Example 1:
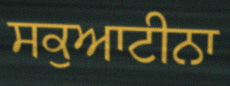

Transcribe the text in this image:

ਸਕੁਆਟੀਨਾ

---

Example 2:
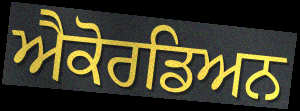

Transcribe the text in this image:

ਐਕੋਰਡਿਅਨ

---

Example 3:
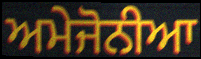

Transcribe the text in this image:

ਅਮੇਜੋਨੀਆ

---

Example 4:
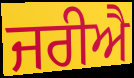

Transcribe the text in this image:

ਜਰੀਐ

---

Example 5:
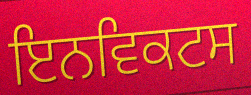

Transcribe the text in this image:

ਇਨਵਿਕਟਸ